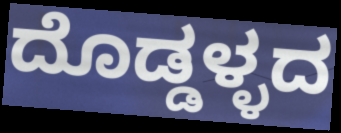
ದೊಡ್ಡಳ್ಳದ